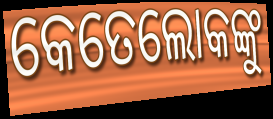
କେତେଲୋକଙ୍କୁ